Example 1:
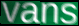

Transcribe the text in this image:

vans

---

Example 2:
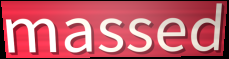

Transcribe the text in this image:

massed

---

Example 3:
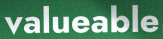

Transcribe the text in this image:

valueable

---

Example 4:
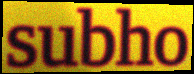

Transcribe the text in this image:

subho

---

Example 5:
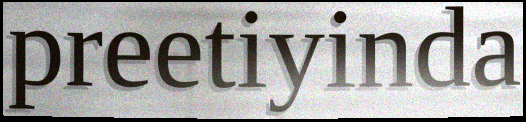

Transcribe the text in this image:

preetiyinda